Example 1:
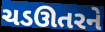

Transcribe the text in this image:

ચડઊતરને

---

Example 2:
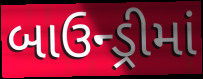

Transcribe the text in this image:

બાઉન્ડ્રીમાં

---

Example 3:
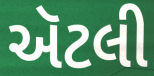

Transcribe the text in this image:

ઍટલી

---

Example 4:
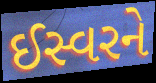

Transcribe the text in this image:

ઈસ્વરને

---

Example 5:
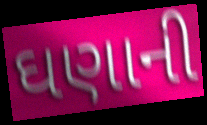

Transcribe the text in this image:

ઘણાની